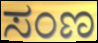
ಸಂಣ